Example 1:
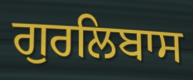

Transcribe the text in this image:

ਗੁਰਲਿਬਾਸ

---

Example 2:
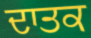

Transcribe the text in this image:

ਦਾਤਕ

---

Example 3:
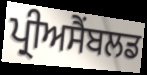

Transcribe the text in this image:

ਪ੍ਰੀਅਸੈਂਬਲਡ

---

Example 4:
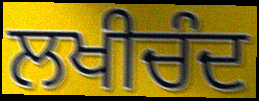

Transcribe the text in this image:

ਲਖੀਚੰਦ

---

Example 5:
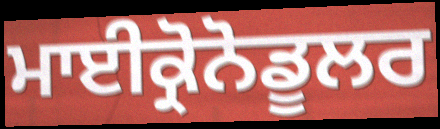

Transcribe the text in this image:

ਮਾਈਕ੍ਰੋਨੋਡੂਲਰ